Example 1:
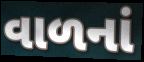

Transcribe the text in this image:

વાળનાં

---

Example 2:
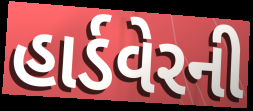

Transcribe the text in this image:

હાર્ડવેરની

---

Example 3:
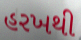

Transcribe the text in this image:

હરખથી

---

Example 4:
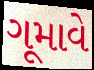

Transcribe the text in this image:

ગૂમાવે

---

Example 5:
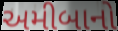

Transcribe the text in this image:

અમીબાનો